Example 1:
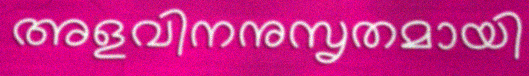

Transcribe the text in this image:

അളവിനനുസൃതമായി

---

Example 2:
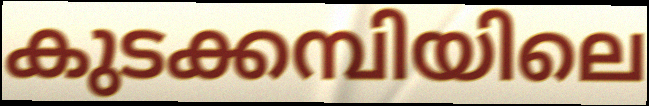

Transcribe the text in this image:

കുടക്കമ്പിയിലെ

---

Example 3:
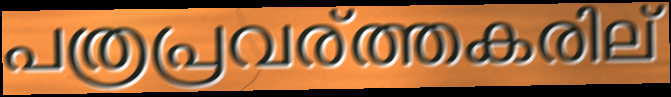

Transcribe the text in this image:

പത്രപ്രവര്ത്തകരില്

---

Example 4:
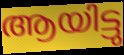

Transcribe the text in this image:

ആയിട്ടു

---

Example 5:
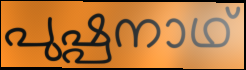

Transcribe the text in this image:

പുഷ്പനാഥ്